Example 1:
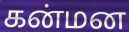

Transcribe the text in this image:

கன்மன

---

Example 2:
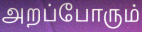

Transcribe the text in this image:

அறப்போரும்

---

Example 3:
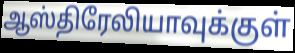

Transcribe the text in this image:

ஆஸ்திரேலியாவுக்குள்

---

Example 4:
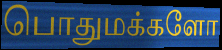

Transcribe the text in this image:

பொதுமக்களோ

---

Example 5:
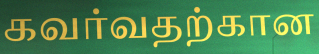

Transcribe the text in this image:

கவர்வதற்கான